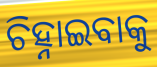
ଚିହ୍ନାଇବାକୁ